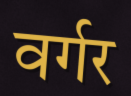
वर्गर